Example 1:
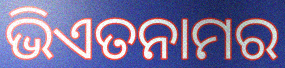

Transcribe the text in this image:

ଭିଏତନାମର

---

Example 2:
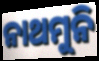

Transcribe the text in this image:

ନାଥମୁନି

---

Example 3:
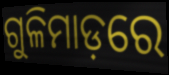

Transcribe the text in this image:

ଗୁଳିମାଡ଼ରେ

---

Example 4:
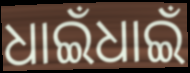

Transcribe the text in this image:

ଧାଇଁଧାଇଁ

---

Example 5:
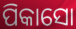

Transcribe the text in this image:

ପିକାସୋ